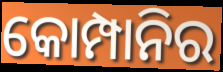
କୋମ୍ପାନିର